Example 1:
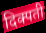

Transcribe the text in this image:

दिक्पती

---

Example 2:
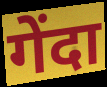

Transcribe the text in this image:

गेंदा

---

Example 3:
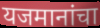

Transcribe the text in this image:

यजमानांचा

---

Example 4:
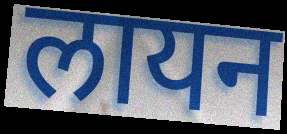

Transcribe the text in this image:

लायन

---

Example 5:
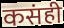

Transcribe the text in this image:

कसंही